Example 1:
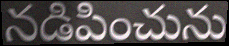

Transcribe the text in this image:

నడిపించును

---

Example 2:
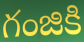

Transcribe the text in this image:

గంజికి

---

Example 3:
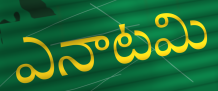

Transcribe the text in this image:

ఎనాటమి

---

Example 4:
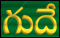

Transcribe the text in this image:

గుదే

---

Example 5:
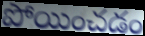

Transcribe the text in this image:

పోయించడం